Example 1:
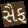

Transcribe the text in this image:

સૈફ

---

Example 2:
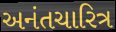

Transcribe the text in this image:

અનંતચારિત્ર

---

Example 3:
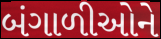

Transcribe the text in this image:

બંગાળીઓને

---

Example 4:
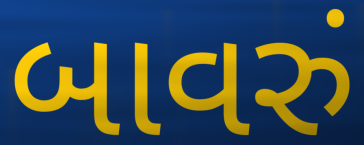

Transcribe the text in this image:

બાવરું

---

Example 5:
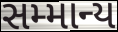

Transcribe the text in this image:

સમ્માન્ય